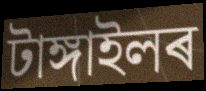
টাঙ্গাইলৰ